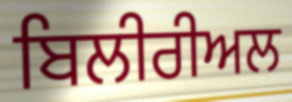
ਬਿਲੀਰੀਅਲ